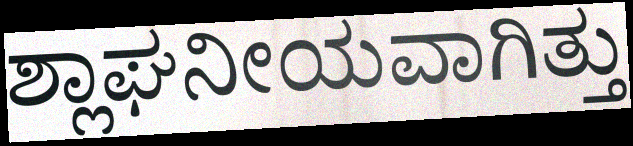
ಶ್ಲಾಘನೀಯವಾಗಿತ್ತು